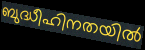
ബുദ്ധീഹിനതയിൽ